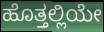
ಹೊತ್ತಲ್ಲಿಯೇ